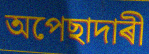
অপেছাদাৰী